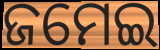
ଜମେଇ